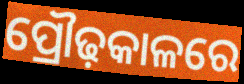
ପ୍ରୌଢ଼କାଳରେ